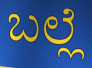
ಬಲ್ಲೆ